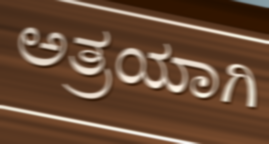
ಅತ್ರಯಾಗಿ